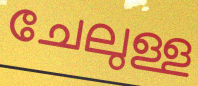
ചേലുള്ള